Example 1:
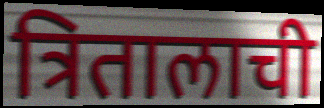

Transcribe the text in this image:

त्रितालाची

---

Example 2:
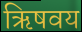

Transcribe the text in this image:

ऋिषवय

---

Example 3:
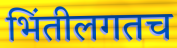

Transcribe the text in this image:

भिंतीलगतच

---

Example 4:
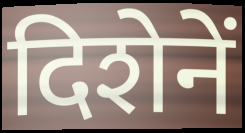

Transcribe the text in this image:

दिशेनें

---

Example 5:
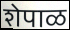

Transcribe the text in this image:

शेपाळ